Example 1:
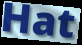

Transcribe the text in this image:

Hat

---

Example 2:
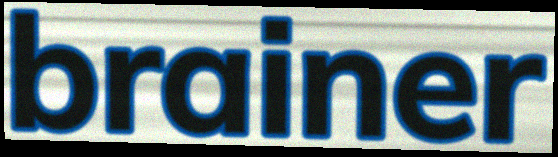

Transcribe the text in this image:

brainer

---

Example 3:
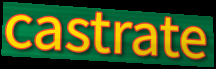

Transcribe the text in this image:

castrate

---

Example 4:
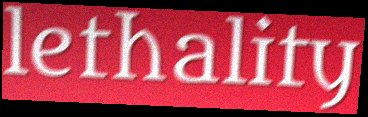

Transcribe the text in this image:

lethality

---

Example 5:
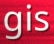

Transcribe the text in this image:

gis